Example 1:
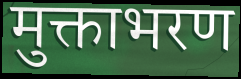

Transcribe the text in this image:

मुक्ताभरण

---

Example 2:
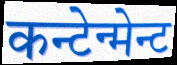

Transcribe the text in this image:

कन्टेन्मेन्ट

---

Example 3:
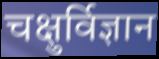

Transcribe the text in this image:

चक्षुर्विज्ञान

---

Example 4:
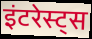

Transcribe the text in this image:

इंटरेस्ट्स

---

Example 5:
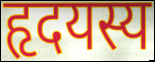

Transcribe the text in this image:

हृदयस्य